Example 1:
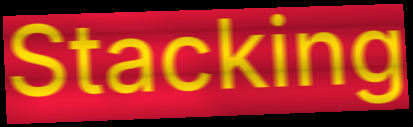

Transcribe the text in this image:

Stacking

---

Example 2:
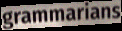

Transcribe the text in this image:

grammarians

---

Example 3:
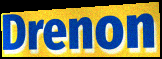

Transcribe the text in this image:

Drenon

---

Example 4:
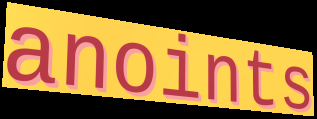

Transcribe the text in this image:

anoints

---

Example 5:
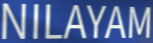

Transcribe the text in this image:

NILAYAM